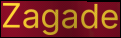
Zagade